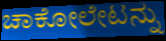
ಚಾಕೋಲೇಟನ್ನು